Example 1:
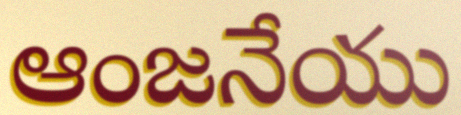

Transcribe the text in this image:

ఆంజనేయు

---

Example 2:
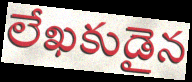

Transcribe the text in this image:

లేఖకుడైన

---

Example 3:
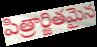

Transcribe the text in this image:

పిత్రార్జితమైన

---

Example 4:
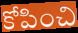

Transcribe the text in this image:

కోపించి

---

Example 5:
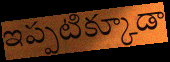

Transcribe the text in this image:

ఇప్పటిక్కూడా